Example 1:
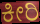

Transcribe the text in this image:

ಕೀರಿ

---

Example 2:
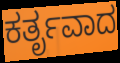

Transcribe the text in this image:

ಕರ್ತೃವಾದ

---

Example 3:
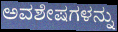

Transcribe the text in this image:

ಅವಶೇಷಗಳನ್ನು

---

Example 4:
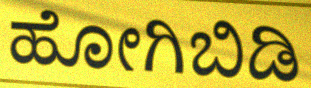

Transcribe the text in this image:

ಹೋಗಿಬಿಡಿ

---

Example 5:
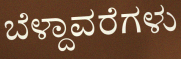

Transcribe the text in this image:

ಬೆಳ್ದಾವರೆಗಳು